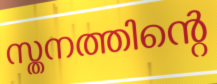
സ്തനത്തിന്റെ